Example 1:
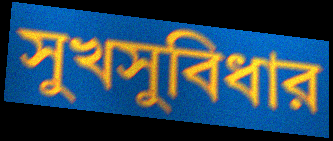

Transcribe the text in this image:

সুখসুবিধার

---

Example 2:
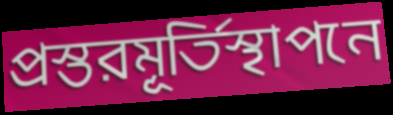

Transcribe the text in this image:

প্রস্তরমূর্তিস্থাপনে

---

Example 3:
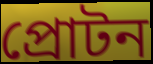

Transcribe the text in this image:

প্রোটন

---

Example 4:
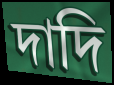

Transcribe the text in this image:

দাদি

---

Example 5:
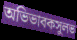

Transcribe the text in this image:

অভিভাবকসুলভ